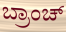
ಬ್ರಾಂಚ್